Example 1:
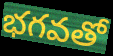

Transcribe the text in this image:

భగవతో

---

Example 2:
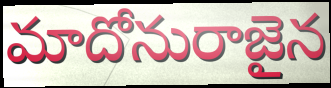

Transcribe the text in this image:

మాదోనురాజైన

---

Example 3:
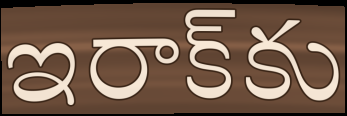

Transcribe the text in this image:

ఇరాక్‌కు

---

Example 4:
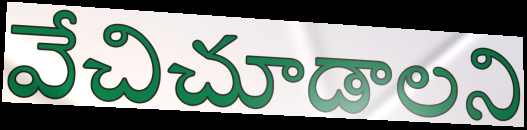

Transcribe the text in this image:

వేచిచూడాలని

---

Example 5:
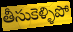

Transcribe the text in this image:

తీసుకెళ్ళిపో